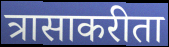
त्रासाकरीता